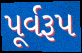
પૂર્વરૂપ